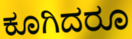
ಕೂಗಿದರೂ